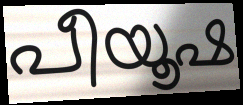
പീയൂഷ